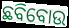
ଛବିବୋଉ